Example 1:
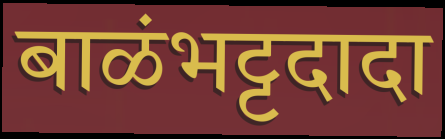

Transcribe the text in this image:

बाळंभट्टदादा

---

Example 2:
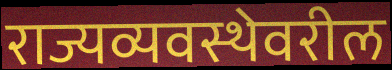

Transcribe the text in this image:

राज्यव्यवस्थेवरील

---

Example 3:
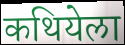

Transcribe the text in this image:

कथियेला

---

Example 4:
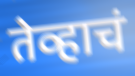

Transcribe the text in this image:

तेव्हाचं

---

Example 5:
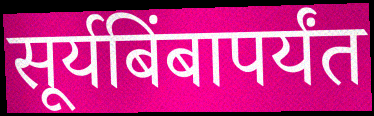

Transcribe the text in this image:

सूर्यबिंबापर्यंत